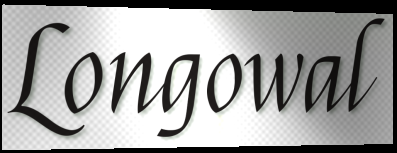
Longowal